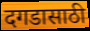
दगडासाठी